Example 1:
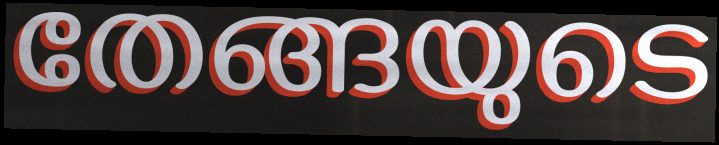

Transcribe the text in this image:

തേങ്ങയുടെ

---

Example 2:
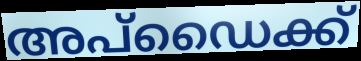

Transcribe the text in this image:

അപ്ഡൈക്ക്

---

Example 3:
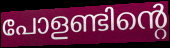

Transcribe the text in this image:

പോളണ്ടിന്റെ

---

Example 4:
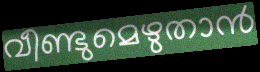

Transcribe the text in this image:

വീണ്ടുമെഴുതാൻ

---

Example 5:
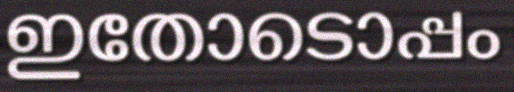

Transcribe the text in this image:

ഇതോടൊപ്പം